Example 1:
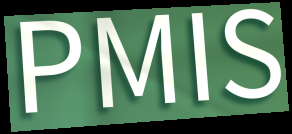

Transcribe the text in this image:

PMIS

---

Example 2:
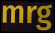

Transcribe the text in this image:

mrg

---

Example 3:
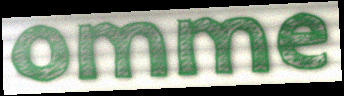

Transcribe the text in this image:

omme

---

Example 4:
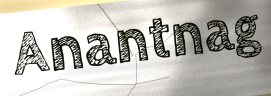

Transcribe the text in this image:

Anantnag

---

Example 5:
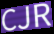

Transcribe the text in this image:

CJR